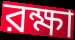
রক্ষা